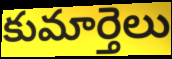
కుమార్తెలు